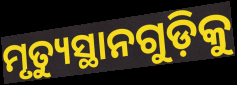
ମୃତ୍ୟୁସ୍ଥାନଗୁଡ଼ିକୁ